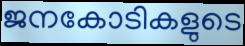
ജനകോടികളുടെ